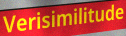
Verisimilitude